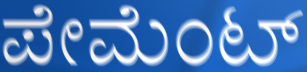
ಪೇಮೆಂಟ್